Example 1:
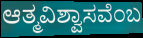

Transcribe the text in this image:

ಆತ್ಮವಿಶ್ವಾಸವೆಂಬ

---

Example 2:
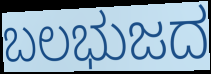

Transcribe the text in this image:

ಬಲಭುಜದ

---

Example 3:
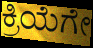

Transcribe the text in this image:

ಕ್ರಿಯೆಗೇ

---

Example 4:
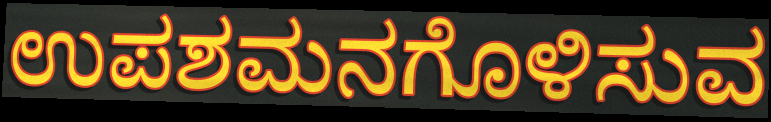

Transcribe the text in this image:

ಉಪಶಮನಗೊಳಿಸುವ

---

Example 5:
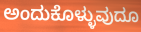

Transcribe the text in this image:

ಅಂದುಕೊಳ್ಳುವುದೂ